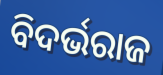
ବିଦର୍ଭରାଜ